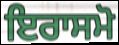
ਇਰਾਸਮੋ